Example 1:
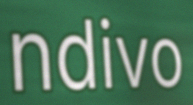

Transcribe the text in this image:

ndivo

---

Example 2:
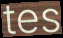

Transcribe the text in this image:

tes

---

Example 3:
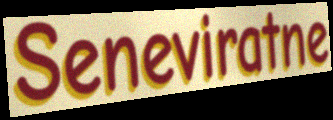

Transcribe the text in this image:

Seneviratne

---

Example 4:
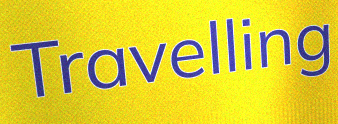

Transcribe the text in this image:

Travelling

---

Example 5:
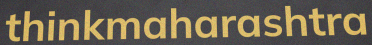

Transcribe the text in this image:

thinkmaharashtra